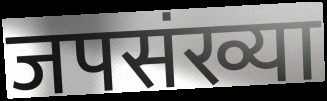
जपसंख्या